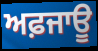
ਅਫ਼ਜਾਊ